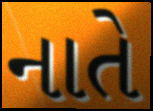
નાતે